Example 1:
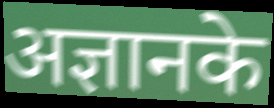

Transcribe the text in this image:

अज्ञानके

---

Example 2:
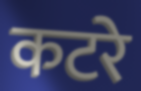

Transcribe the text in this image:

कटरे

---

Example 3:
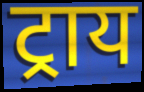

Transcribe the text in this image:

ट्राय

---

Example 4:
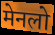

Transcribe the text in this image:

मेनलो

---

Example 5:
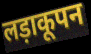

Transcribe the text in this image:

लड़ाकूपन